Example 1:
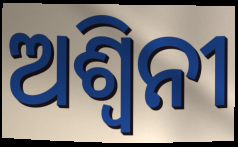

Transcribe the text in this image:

ଅଶ୍ୱିନୀ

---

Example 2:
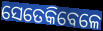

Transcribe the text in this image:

ସେତେକିବେଳେ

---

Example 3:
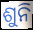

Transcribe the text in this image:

ଶୁନି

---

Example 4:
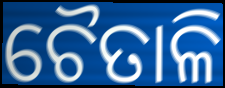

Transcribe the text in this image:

ଚୈତାଳି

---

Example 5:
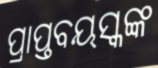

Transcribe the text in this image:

ପ୍ରାପ୍ତବୟସ୍କଙ୍କ